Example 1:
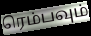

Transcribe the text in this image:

ரெம்பவும்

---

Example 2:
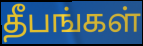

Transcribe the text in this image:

தீபங்கள்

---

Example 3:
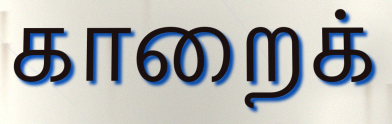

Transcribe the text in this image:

காறைக்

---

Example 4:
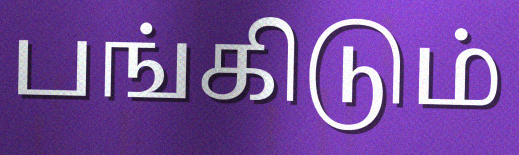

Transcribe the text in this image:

பங்கிடும்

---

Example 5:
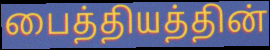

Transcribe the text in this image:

பைத்தியத்தின்